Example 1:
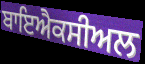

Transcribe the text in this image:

ਬਾਇਐਕਸੀਅਲ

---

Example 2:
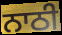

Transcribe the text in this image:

ਨਾਠੀ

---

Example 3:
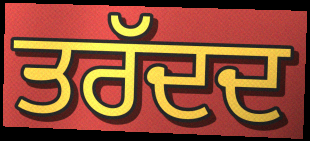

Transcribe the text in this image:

ਤਰੱਦਦ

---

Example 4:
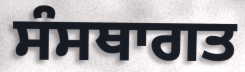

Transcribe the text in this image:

ਸੰਸਥਾਗਤ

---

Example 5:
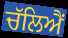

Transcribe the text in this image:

ਚੱਲਿਐਂ